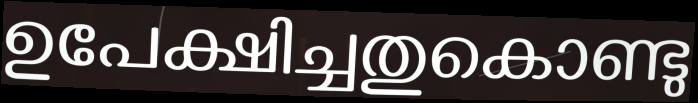
ഉപേക്ഷിച്ചതുകൊണ്ടു